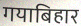
गयाबिहार